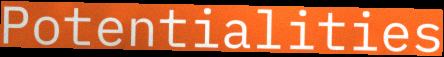
Potentialities